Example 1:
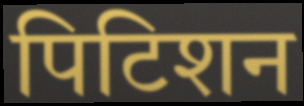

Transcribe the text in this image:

पिटिशन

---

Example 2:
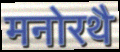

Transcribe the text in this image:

मनोरथै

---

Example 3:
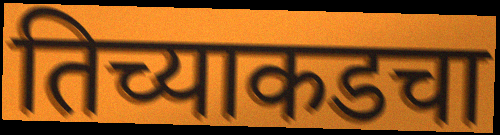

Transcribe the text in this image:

तिच्याकडचा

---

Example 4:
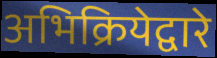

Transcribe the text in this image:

अभिक्रियेद्वारे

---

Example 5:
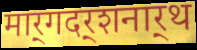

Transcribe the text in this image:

मार्गदर्शनार्थ